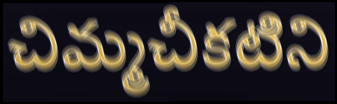
చిమ్మచీకటిని